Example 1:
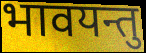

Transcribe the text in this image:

भावयन्तु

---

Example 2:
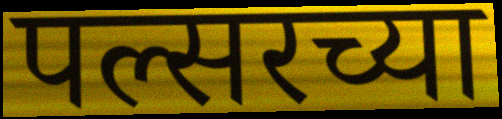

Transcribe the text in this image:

पल्सरच्या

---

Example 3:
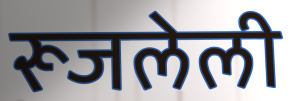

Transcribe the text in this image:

रूजलेली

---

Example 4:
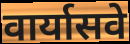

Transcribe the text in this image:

वार्यासवे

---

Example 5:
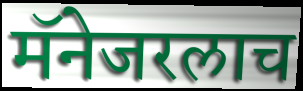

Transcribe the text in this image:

मॅनेजरलाच